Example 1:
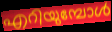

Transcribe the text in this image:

എറിയുമ്പോൾ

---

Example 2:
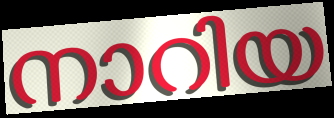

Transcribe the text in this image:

നാറിയ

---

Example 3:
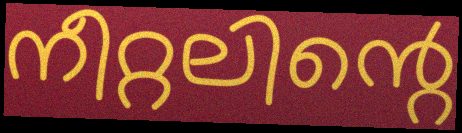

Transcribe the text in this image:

നീറ്റലിന്റെ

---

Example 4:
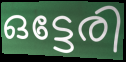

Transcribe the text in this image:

ഒട്ടേരി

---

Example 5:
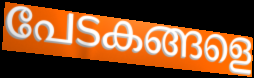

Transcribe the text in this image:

പേടകങ്ങളെ